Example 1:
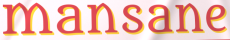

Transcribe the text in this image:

mansane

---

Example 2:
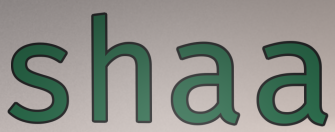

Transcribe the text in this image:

shaa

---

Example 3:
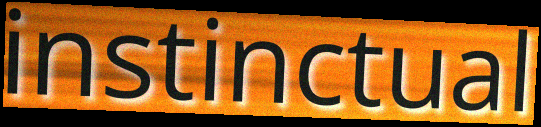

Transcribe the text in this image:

instinctual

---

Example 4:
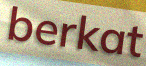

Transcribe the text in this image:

berkat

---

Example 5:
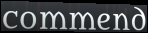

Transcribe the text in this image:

commend